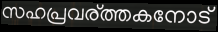
സഹപ്രവര്ത്തകനോട്